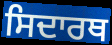
ਸਿਦਾਰਥ